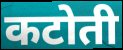
कटोती